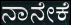
ನಾನೇಕೆ